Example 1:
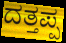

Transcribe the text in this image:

ದತ್ತಪ್ಪ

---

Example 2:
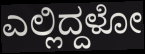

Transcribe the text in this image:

ಎಲ್ಲಿದ್ದಳೋ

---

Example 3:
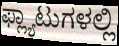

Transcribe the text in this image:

ಫ್ಲ್ಯಾಟುಗಳಲ್ಲಿ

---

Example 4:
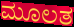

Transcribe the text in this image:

ಮೂಲತ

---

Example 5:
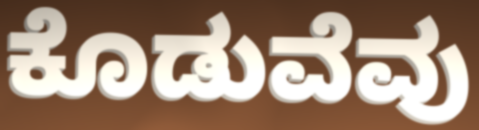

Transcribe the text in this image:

ಕೊಡುವೆವು